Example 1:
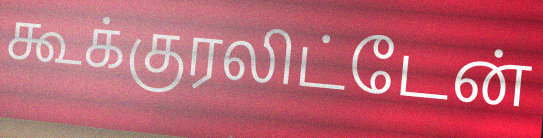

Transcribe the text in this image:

கூக்குரலிட்டேன்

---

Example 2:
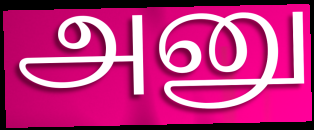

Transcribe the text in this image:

அனு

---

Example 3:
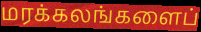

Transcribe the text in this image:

மரக்கலங்களைப்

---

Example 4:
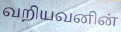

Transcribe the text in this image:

வறியவனின்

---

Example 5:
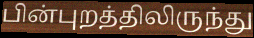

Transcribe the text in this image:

பின்புறத்திலிருந்து